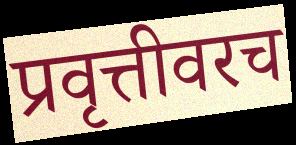
प्रवृत्तीवरच